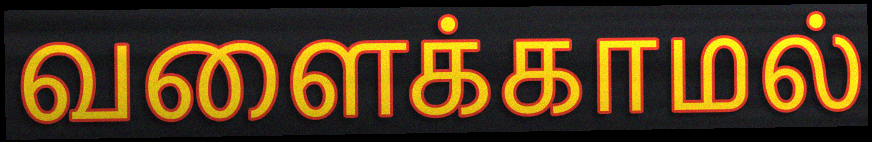
வளைக்காமல்